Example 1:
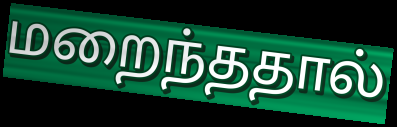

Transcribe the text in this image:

மறைந்ததால்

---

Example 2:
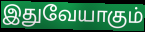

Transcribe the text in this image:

இதுவேயாகும்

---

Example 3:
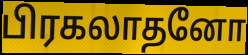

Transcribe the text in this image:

பிரகலாதனோ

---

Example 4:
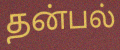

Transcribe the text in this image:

தன்பல்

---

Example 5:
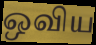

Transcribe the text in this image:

ஒவிய